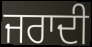
ਜਰਾਦੀ